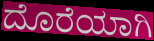
ದೊರೆಯಾಗಿ